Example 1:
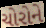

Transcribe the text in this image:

ચોરોને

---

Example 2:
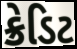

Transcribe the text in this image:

ક્રેડિટ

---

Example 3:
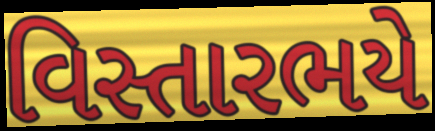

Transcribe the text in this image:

વિસ્તારભયે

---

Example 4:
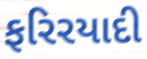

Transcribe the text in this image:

ફરિરયાદી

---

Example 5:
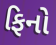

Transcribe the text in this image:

ફિનો